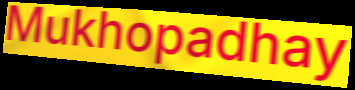
Mukhopadhay